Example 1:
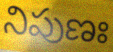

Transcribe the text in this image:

నిపుణః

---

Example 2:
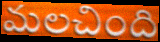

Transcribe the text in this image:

మలచింది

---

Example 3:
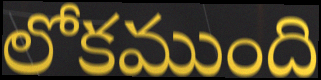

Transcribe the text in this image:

లోకముంది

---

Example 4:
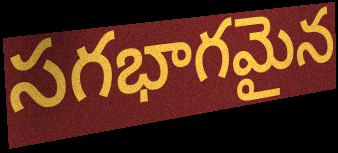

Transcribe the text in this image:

సగభాగమైన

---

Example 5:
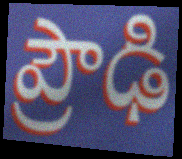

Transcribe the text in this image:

ప్రౌఢి